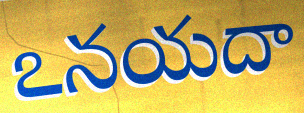
ఽనయదా